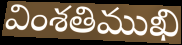
వింశతిముఖి